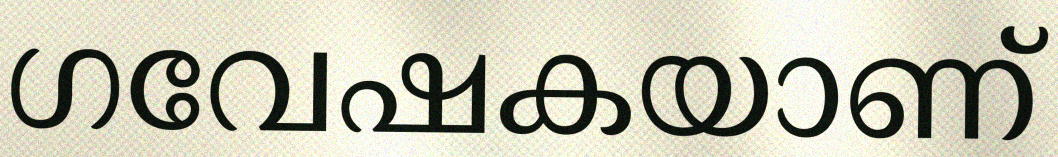
ഗവേഷകയാണ്